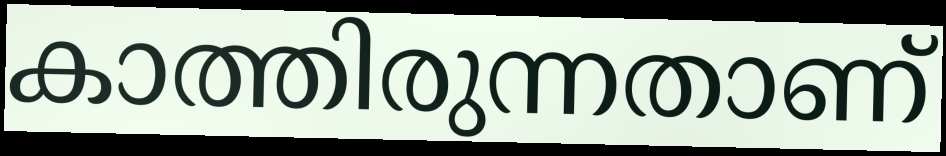
കാത്തിരുന്നതാണ്